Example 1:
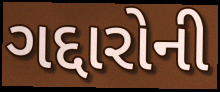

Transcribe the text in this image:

ગદ્દારોની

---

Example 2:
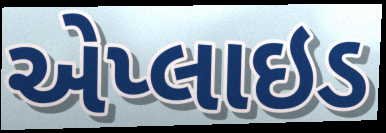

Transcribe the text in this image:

એપ્લાઇડ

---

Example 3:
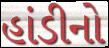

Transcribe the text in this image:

હાંડીનો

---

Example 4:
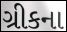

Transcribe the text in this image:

ગ્રીકના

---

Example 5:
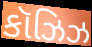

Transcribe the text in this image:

કૉઝિઝ